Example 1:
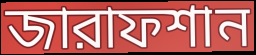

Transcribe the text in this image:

জারাফশান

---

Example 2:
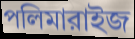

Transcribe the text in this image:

পলিমারাইজ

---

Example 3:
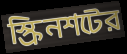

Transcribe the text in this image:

স্ক্রিনশটের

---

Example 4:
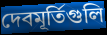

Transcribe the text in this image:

দেবমূর্তিগুলি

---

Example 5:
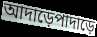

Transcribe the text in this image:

আদাড়েপাদাড়ে